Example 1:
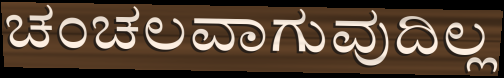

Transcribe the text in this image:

ಚಂಚಲವಾಗುವುದಿಲ್ಲ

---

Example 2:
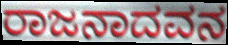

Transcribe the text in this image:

ರಾಜನಾದವನ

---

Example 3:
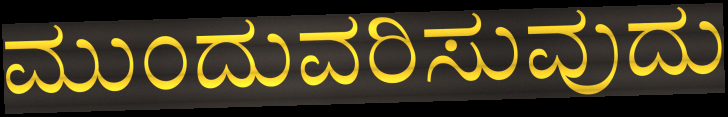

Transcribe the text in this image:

ಮುಂದುವರಿಸುವುದು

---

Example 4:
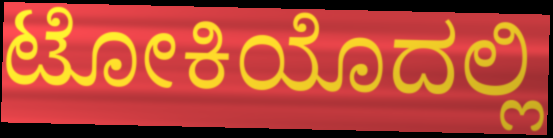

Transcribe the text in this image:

ಟೋಕಿಯೊದಲ್ಲಿ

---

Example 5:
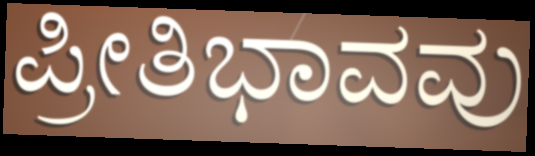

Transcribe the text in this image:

ಪ್ರೀತಿಭಾವವು